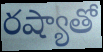
రష్యాతో